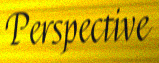
Perspective